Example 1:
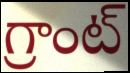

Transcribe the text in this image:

గ్రాంట్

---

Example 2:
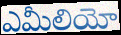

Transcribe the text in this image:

ఎమీలియో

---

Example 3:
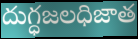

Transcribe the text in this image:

దుగ్ధజలధిజాత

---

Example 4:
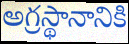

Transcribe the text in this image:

అగ్రస్థానానికి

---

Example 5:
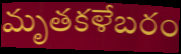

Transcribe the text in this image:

మృతకళేబరం